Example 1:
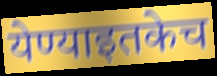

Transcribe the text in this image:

येण्याइतकेच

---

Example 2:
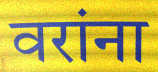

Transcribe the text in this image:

वरांना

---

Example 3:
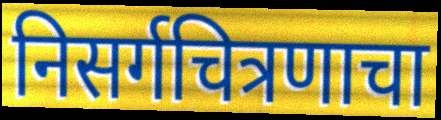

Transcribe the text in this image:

निसर्गचित्रणाचा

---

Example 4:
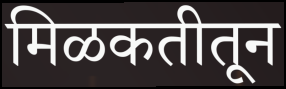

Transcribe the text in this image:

मिळकतीतून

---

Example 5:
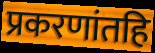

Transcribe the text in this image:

प्रकरणांतहि